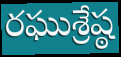
రఘుశ్రేష్ఠ